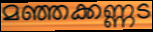
മഞ്ഞക്കണ്ണട